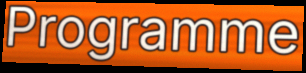
Programme